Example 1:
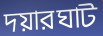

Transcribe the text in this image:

দয়ারঘাট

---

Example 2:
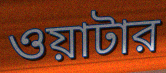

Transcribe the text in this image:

ওয়াটার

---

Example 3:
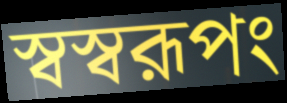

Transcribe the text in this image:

স্বস্বরূপং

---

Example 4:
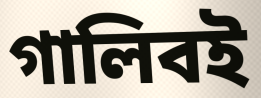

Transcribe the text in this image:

গালিবই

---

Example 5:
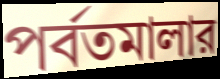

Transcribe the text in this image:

পর্বতমালার